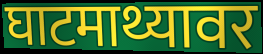
घाटमाथ्यावर